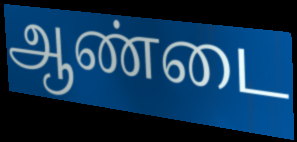
ஆண்டை